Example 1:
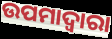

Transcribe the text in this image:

ଉପମାଦ୍ୱାରା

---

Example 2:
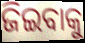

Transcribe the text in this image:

ଜିଇବାକୁ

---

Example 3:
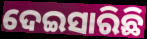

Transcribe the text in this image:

ଦେଇସାରିଛି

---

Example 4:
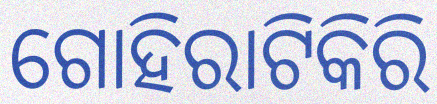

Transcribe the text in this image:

ଗୋହିରାଟିକିରି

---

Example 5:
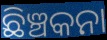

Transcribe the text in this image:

ଛିଞ୍ଚକନା